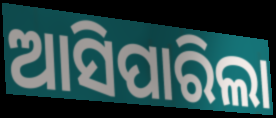
ଆସିପାରିଲା